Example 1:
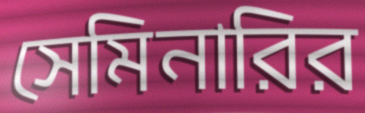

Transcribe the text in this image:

সেমিনারির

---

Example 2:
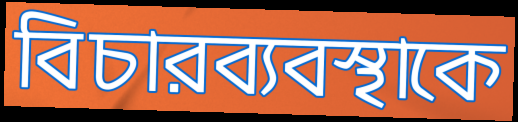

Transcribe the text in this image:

বিচারব্যবস্থাকে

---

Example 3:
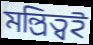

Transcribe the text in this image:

মন্ত্রিত্বই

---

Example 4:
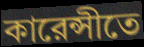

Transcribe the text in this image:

কারেন্সীতে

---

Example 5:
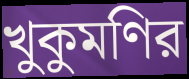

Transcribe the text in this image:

খুকুমণির